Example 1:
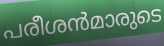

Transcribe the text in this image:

പരീശൻമാരുടെ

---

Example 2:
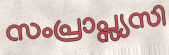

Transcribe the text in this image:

സംപ്രാപ്സ്യസി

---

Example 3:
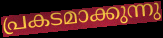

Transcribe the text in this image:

പ്രകടമാക്കുന്നു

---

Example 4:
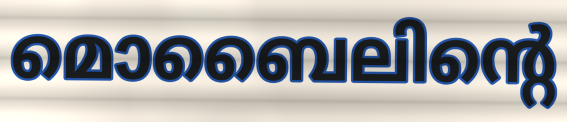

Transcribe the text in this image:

മൊബൈലിന്റെ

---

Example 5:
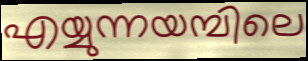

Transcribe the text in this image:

എയ്യുന്നയമ്പിലെ